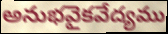
అనుభవైకవేద్యము